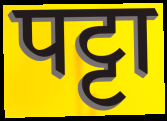
पट्टा